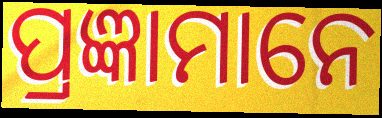
ପ୍ରଜ୍ଞାମାନେ